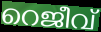
റെജീവ്